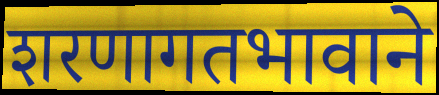
शरणागतभावाने